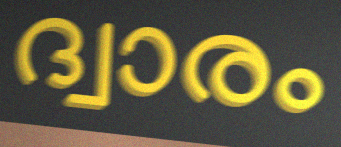
ദ്വാരം